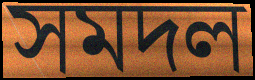
সমদল